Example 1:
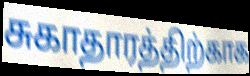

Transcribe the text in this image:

சுகாதாரத்திற்காக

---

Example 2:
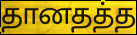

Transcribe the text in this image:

தானதத்த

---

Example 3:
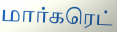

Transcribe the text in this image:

மார்கரெட்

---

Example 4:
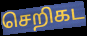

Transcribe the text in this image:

செறிகட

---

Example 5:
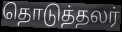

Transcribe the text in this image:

தொடுத்தலர்